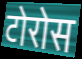
टोरोस